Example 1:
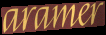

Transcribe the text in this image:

aramer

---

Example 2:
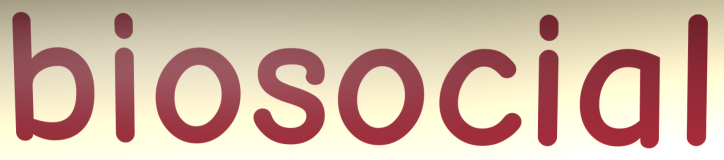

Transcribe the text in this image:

biosocial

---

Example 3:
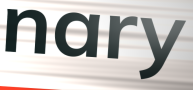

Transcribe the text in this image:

nary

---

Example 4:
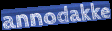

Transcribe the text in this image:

annodakke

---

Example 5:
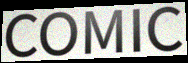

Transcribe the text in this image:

COMIC